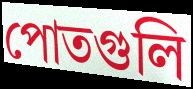
পোতগুলি